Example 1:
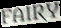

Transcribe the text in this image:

FAIRY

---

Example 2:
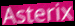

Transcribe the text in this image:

Asterix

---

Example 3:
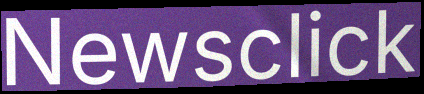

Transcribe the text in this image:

Newsclick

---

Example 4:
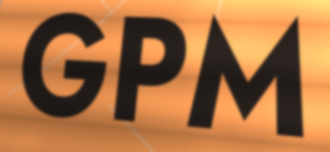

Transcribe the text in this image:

GPM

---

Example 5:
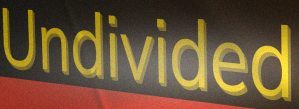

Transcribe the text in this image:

Undivided